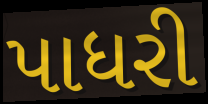
પાધરી